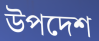
উপদেশ